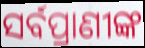
ସର୍ବପ୍ରାଣୀଙ୍କ